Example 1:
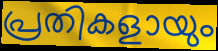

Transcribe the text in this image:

പ്രതികളായും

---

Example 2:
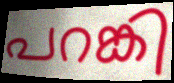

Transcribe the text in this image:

പറങ്കി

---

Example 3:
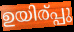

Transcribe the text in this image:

ഉയിര്പ്പു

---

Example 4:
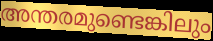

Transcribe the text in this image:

അന്തരമുണ്ടെങ്കിലും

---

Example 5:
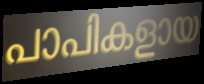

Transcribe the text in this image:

പാപികളായ